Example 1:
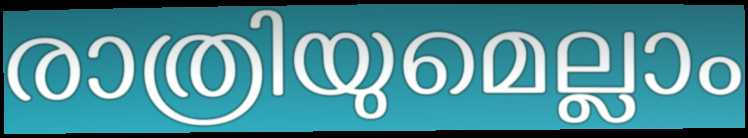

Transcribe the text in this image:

രാത്രിയുമെല്ലാം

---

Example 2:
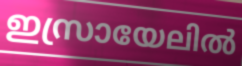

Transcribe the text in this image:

ഇസ്രായേലിൽ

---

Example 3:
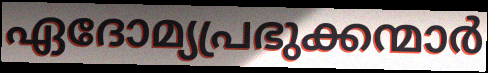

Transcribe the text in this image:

ഏദോമ്യപ്രഭുക്കന്മാർ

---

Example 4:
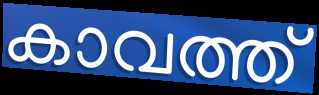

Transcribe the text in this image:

കാവത്ത്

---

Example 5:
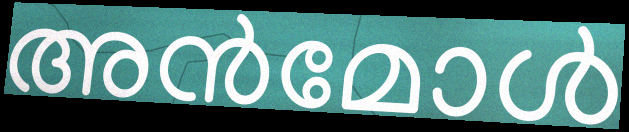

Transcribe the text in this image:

അൻമോൾ